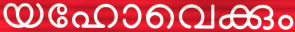
യഹോവെക്കും